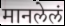
मानलेलं